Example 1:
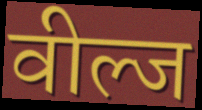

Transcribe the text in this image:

वील्ज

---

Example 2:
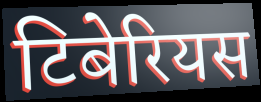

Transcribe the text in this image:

टिबेरियस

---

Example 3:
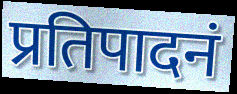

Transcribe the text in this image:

प्रतिपादनं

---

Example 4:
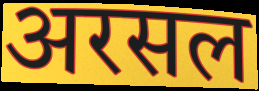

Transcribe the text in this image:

अरसल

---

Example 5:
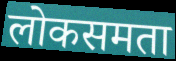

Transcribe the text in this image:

लोकसमता